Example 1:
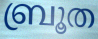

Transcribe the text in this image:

ബ്രൂത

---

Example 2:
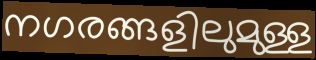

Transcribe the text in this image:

നഗരങ്ങളിലുമുള്ള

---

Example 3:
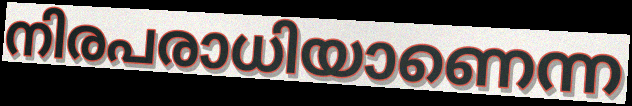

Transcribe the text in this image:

നിരപരാധിയാണെന്ന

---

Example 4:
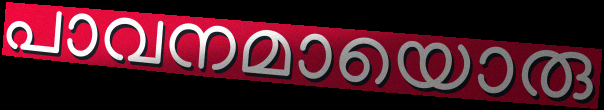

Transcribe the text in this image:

പാവനമായൊരു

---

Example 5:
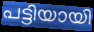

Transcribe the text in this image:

പട്ടിയായി